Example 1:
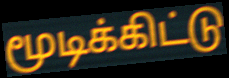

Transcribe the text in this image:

மூடிக்கிட்டு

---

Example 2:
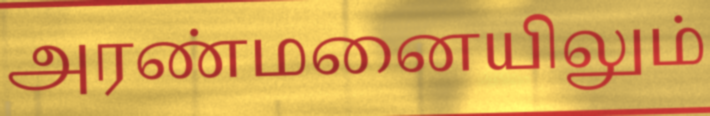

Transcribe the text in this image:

அரண்மனையிலும்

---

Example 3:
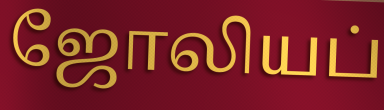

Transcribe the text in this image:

ஜோலியப்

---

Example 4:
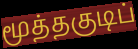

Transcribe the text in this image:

மூத்தகுடிப்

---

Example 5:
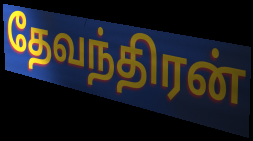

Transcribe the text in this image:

தேவந்திரன்